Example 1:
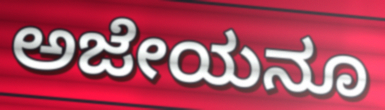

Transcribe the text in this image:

ಅಜೇಯನೂ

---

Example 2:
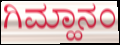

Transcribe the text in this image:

ಗಿಮ್ಹಾನಂ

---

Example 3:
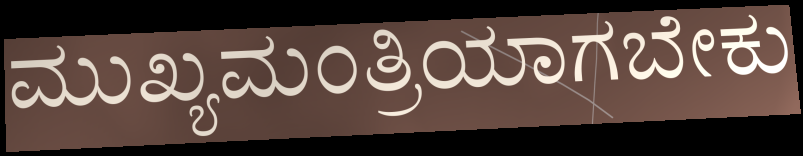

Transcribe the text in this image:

ಮುಖ್ಯಮಂತ್ರಿಯಾಗಬೇಕು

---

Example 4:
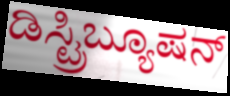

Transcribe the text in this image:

ಡಿಸ್ಟ್ರಿಬ್ಯೂಷನ್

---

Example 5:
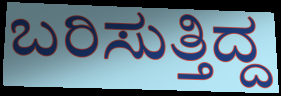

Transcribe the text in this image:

ಬರಿಸುತ್ತಿದ್ದ